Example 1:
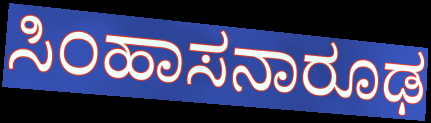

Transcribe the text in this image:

ಸಿಂಹಾಸನಾರೂಢ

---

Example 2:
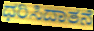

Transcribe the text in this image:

ಧರಿಸಿದಾತನೆ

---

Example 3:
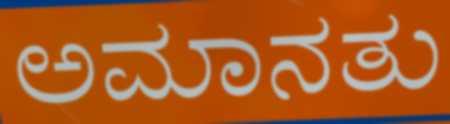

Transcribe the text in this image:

ಅಮಾನತು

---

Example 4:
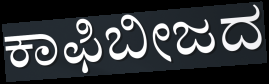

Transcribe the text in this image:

ಕಾಫಿಬೀಜದ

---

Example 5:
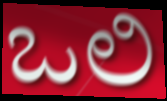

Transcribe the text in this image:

ಒಲಿ